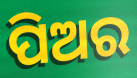
ପିଅର